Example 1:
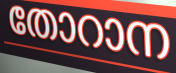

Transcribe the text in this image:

തോറാന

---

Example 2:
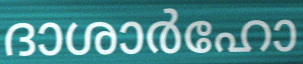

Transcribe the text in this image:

ദാശാർഹോ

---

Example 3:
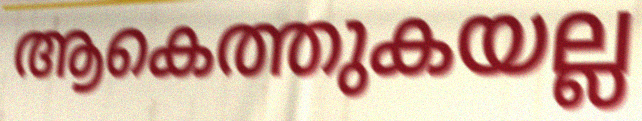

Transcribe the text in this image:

ആകെത്തുകയല്ല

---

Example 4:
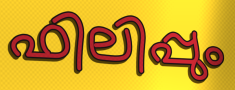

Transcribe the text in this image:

ഫിലിപ്പും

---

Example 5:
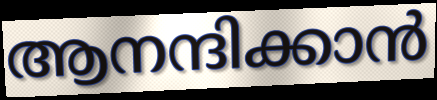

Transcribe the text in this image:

ആനന്ദിക്കാൻ